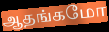
ஆதங்கமோ